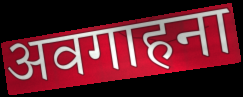
अवगाहना